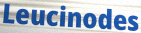
Leucinodes